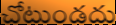
చోటుండదు